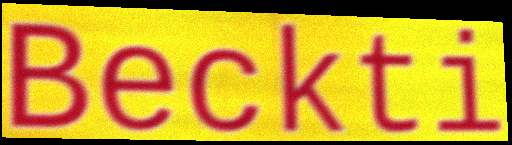
Beckti